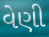
વેણી